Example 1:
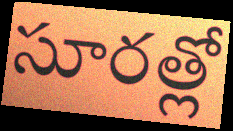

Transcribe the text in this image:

సూరత్లో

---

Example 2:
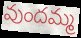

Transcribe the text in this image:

వుందమ్మ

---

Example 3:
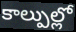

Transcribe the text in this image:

కాల్పుల్లో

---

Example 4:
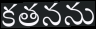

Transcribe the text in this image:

కతనను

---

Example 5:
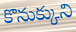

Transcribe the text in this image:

కొనుక్కుని